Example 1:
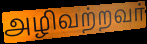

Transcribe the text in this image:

அழிவற்றவர்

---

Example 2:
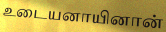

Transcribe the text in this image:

உடையனாயினான்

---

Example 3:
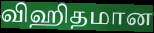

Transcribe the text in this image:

விஹிதமான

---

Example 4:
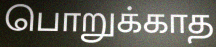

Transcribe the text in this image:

பொறுக்காத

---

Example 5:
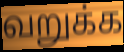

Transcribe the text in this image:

வறுக்க